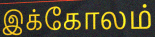
இக்கோலம்